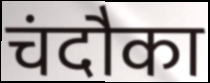
चंदौका